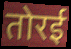
तोरई